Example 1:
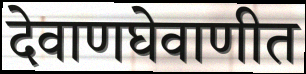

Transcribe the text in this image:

देवाणघेवाणीत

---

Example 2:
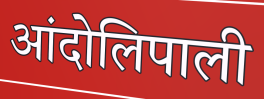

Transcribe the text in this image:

आंदोलिपाली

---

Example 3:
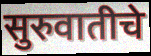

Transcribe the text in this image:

सुरुवातीचे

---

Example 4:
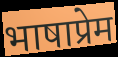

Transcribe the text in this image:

भाषाप्रेम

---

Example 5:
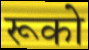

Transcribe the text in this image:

रूको